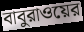
বাবুরাওয়ের